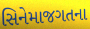
સિનેમાજગતના